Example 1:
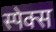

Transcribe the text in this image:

स्पेक्स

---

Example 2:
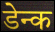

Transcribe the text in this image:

डेन्क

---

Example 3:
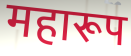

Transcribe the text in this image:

महारूप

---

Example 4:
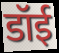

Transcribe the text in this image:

डॉई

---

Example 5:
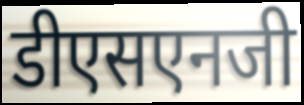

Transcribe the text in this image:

डीएसएनजी